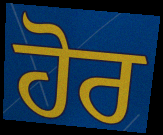
ਹੋਰ